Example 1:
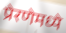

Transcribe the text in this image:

प्रेरणेमध्ये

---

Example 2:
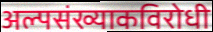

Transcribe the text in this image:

अल्पसंख्याकविरोधी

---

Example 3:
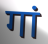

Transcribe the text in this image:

गां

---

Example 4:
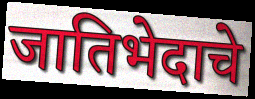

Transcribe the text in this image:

जातिभेदाचे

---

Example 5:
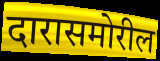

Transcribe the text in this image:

दारासमोरील